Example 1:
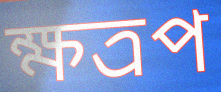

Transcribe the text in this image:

ক্ষত্রপ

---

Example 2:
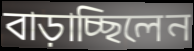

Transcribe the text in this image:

বাড়াচ্ছিলেন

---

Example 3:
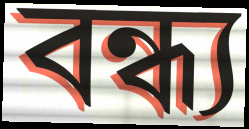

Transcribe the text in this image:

বন্ধ্য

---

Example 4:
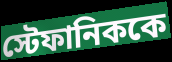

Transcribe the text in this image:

স্টেফানিককে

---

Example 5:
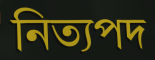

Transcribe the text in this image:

নিত্যপদ